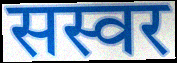
सस्वर